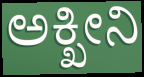
ಅಕ್ಖೀನಿ